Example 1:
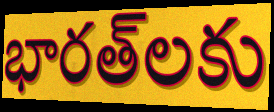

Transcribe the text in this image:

భారత్‌లకు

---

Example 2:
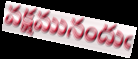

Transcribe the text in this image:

వక్షమునందుఁ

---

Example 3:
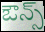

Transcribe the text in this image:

ఔన్స్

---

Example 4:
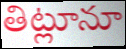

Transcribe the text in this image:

తిట్లూనూ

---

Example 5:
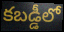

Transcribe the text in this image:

కబడ్డీలో